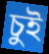
চুই